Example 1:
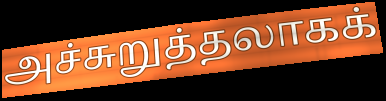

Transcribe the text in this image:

அச்சுறுத்தலாகக்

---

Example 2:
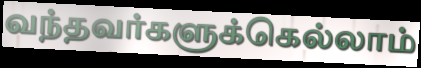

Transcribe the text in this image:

வந்தவர்களுக்கெல்லாம்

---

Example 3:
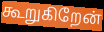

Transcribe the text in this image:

கூறுகிறேன்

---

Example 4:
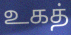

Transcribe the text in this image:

உகத்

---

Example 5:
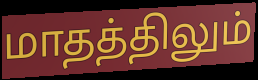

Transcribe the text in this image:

மாதத்திலும்